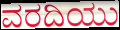
ವರದಿಯು